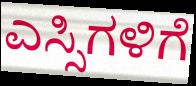
ಎಸ್ಸಿಗಳಿಗೆ